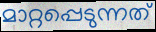
മാറ്റപ്പെടുന്നത്